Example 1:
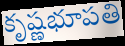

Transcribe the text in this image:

కృష్ణభూపతి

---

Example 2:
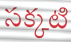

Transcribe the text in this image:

సక్కటి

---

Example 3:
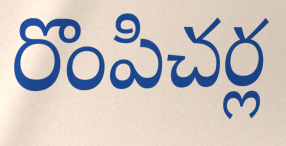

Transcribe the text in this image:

రొంపిచర్ల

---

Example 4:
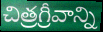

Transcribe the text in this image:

చిత్రగ్రీవాన్ని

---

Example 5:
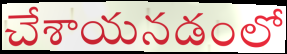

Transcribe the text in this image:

చేశాయనడంలో